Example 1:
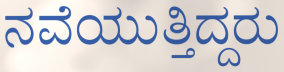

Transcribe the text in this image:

ನವೆಯುತ್ತಿದ್ದರು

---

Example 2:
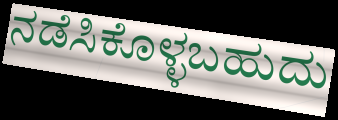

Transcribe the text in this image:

ನಡೆಸಿಕೊಳ್ಳಬಹುದು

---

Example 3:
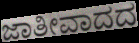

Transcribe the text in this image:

ಜಾತೀವಾದದ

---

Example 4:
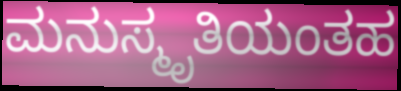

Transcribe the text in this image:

ಮನುಸ್ಮೃತಿಯಂತಹ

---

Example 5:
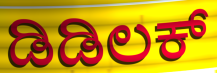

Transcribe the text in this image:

ಡಿಡಿಲಕ್